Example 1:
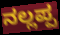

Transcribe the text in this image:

ನಲ್ಲಪ್ಪ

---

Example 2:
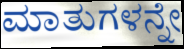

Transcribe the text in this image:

ಮಾತುಗಳನ್ನೇ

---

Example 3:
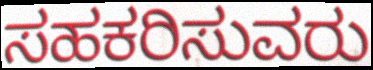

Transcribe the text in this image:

ಸಹಕರಿಸುವರು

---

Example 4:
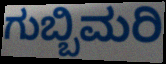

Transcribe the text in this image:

ಗುಬ್ಬಿಮರಿ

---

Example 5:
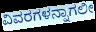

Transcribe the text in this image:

ವಿವರಗಳನ್ನಾಗಲೀ